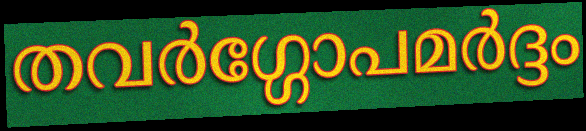
തവർഗ്ഗോപമർദ്ദം